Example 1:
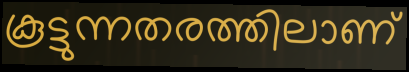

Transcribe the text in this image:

കൂട്ടുന്നതരത്തിലാണ്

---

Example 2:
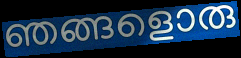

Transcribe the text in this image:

ഞങ്ങളൊരു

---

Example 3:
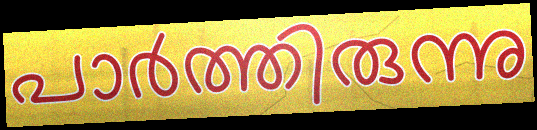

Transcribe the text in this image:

പാർത്തിരുന്നു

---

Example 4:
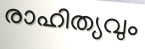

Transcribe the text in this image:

രാഹിത്യവും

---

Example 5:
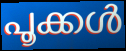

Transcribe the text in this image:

പൂക്കൾ